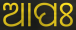
ଆପଃ